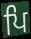
ਪਿ